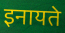
इनायते